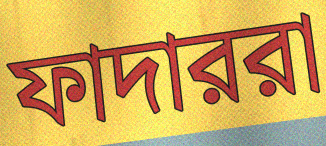
ফাদাররা